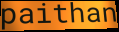
paithan